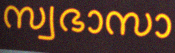
സ്വഭാസാ